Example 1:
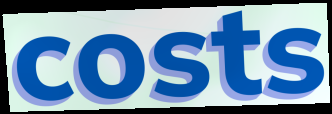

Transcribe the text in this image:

costs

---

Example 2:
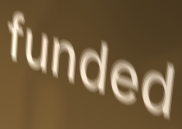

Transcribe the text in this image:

funded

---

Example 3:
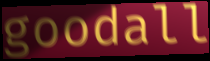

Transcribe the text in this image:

goodall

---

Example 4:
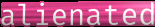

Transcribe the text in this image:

alienated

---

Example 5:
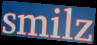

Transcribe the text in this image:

smilz